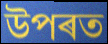
উপৰত